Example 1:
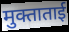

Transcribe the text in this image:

मुक्ताताई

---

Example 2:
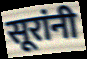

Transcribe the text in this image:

सूरांनी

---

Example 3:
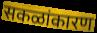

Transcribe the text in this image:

सकळांकारण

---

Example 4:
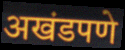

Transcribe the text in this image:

अखंडपणे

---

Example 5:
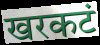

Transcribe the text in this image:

खरकटं